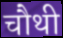
चौथी